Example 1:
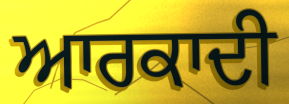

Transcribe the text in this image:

ਆਰਕਾਦੀ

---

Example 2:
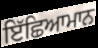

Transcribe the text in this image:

ਇੱਛਿਆਮਾਨ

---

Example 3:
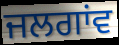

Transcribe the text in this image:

ਜਲਗਾਂਵ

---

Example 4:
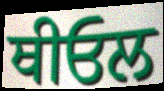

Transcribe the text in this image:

ਥੀਓਲ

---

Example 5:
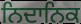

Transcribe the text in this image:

ਨਿਦਾਨਿਕ